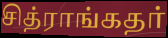
சித்ராங்கதர்